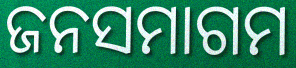
ଜନସମାଗମ